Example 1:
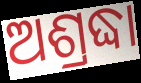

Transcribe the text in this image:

ଅଶ୍ରଦ୍ଧା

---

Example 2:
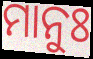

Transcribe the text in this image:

ମାନୁଃ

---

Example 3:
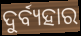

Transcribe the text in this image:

ଦୁର୍ବ୍ୟହାର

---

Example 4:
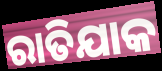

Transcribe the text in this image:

ରାତିଯାକ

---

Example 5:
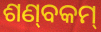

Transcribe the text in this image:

ଶଣ୍‌ବକମ୍